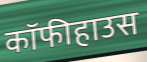
कॉफीहाउस